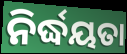
ନିର୍ଦ୍ଧୟତା